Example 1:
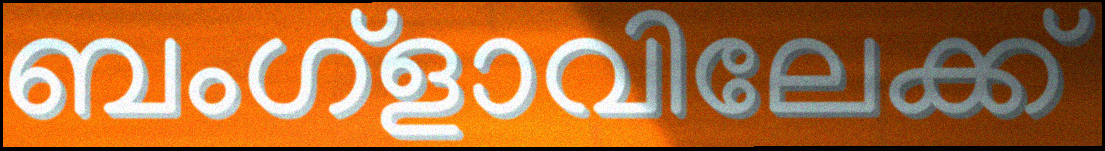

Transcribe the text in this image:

ബംഗ്ളാവിലേക്ക്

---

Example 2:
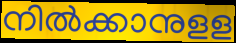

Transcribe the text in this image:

നിൽക്കാനുളള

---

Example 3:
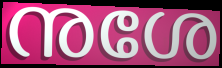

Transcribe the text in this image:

നുശേ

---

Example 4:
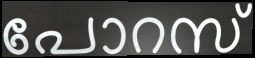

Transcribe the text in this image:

പോറസ്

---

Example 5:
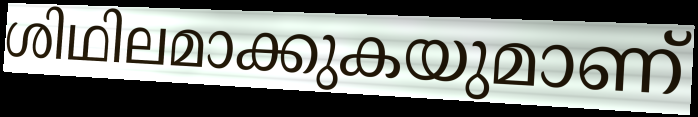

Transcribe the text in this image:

ശിഥിലമാക്കുകയുമാണ്